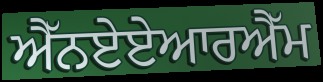
ਐੱਨਏਏਆਰਐੱਮ